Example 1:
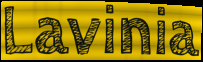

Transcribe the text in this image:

Lavinia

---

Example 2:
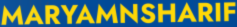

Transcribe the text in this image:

MARYAMNSHARIF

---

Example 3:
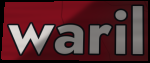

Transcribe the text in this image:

waril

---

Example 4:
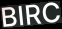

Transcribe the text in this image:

BIRC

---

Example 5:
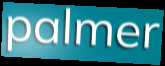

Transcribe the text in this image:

palmer